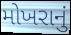
મોખરાનું